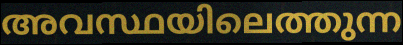
അവസ്ഥയിലെത്തുന്ന